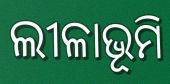
ଲୀଳାଭୂମି